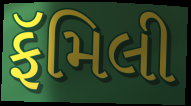
ફૅમિલી